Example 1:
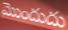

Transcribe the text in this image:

మొందుదు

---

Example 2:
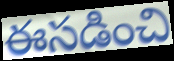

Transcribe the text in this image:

ఈసడించి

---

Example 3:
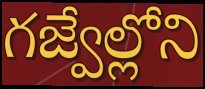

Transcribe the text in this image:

గజ్వేల్లోని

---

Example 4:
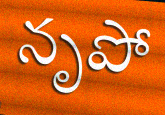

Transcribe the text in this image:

నృపో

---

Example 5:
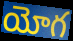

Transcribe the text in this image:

యోగ